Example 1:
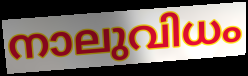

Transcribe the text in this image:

നാലുവിധം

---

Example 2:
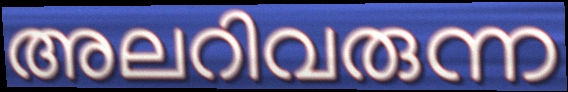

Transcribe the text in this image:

അലറിവരുന്ന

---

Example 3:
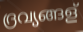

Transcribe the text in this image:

ദ്രവ്യങ്ങള്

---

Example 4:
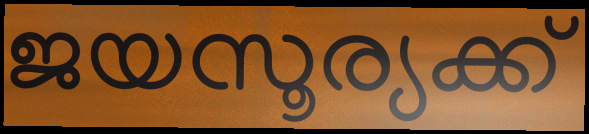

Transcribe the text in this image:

ജയസൂര്യക്ക്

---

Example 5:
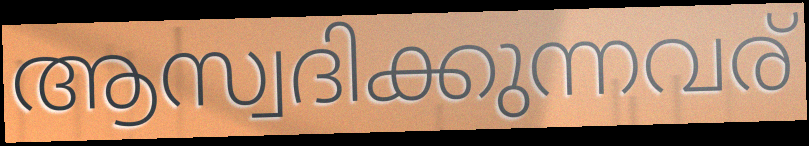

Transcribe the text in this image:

ആസ്വദിക്കുന്നവര്